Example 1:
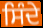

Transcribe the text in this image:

ਸਿੰਦੇ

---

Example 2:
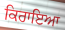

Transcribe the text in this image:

ਕਿਰਾਇਆ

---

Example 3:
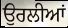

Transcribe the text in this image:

ਉਰਲੀਆਂ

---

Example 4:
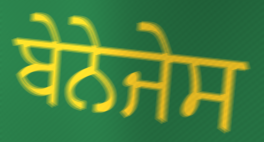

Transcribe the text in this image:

ਬੇਨੇਜੇਸ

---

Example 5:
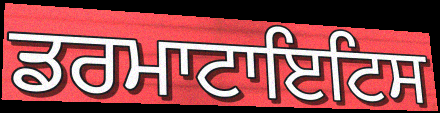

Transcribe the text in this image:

ਡਰਮਾਟਾਇਟਿਸ